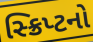
સ્ક્રિપ્ટનો